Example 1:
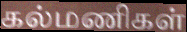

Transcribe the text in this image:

கல்மணிகள்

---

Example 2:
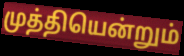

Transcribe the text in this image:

முத்தியென்றும்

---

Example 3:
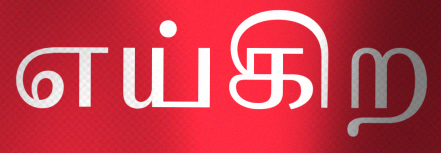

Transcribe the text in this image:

எய்கிற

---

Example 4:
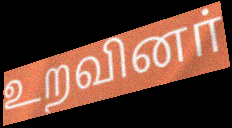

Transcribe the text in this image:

உறவினர்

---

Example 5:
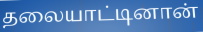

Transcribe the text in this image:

தலையாட்டினான்